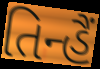
તિન્હૈં